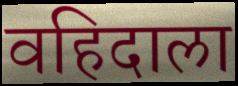
वहिदाला